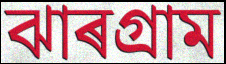
ঝাৰগ্ৰাম